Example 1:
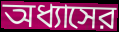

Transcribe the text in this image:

অধ্যাসের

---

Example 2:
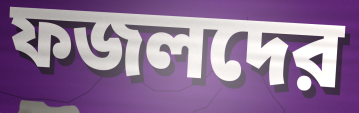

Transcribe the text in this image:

ফজলদের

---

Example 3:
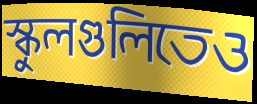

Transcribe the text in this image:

স্কুলগুলিতেও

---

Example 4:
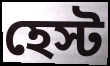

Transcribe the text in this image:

হেস্ট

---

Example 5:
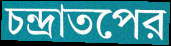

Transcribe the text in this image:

চন্দ্রাতপের